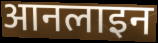
आनलाइन